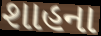
શાહના